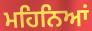
ਮਹਿਨਿਆਂ